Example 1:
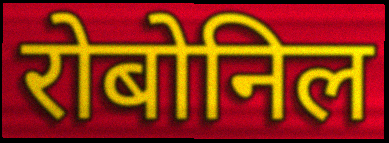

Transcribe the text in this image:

रोबोनिल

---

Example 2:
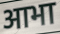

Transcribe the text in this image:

आभा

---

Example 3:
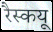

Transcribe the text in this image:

रैस्कयू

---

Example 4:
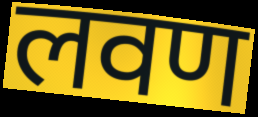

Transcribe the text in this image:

लवण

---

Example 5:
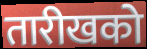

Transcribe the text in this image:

तारीखको